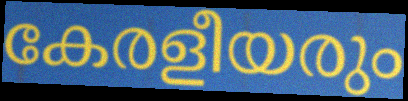
കേരളീയരും